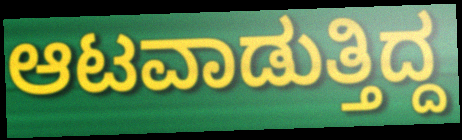
ಆಟವಾಡುತ್ತಿದ್ದ